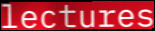
lectures